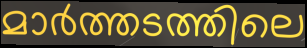
മാർത്തടത്തിലെ